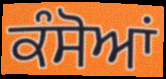
ਕੰਸੋਆਂ